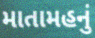
માતામહનું